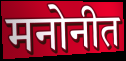
मनोनीत